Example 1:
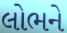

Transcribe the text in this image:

લોભને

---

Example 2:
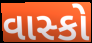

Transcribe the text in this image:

વાસ્કો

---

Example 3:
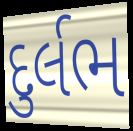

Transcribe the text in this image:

દુર્લભ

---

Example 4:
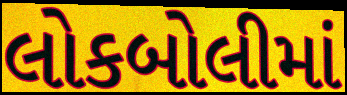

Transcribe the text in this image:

લોકબોલીમાં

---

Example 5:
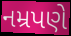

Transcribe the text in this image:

નમ્રપણે